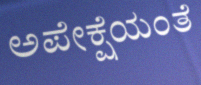
ಅಪೇಕ್ಷೆಯಂತೆ